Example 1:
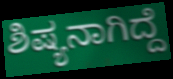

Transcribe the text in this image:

ಶಿಷ್ಯನಾಗಿದ್ದೆ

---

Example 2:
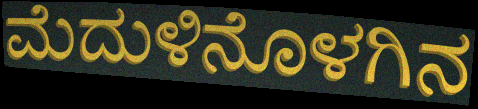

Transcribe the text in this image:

ಮೆದುಳಿನೊಳಗಿನ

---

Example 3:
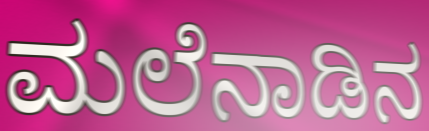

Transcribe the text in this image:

ಮಲೆನಾಡಿನ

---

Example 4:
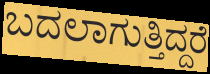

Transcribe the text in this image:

ಬದಲಾಗುತ್ತಿದ್ದರೆ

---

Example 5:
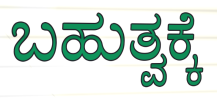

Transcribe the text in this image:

ಬಹುತ್ವಕ್ಕೆ